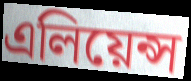
এলিয়েন্স